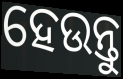
ହେଉନ୍ତୁ